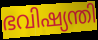
ഭവിഷ്യന്തി